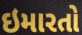
ઇમારતો